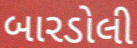
બારડોલી